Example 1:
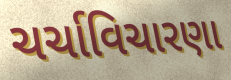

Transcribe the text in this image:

ચર્ચાવિચારણા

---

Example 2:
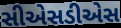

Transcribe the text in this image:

સીએસડીએસ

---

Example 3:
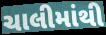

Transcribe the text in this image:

ચાલીમાંથી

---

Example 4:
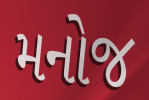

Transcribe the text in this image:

મનોજ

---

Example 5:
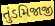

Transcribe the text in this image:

તુંડમિજાજી